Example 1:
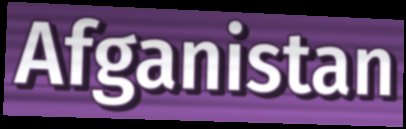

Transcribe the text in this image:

Afganistan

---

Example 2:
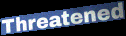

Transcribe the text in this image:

Threatened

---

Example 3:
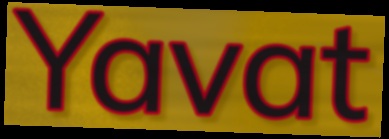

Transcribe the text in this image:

Yavat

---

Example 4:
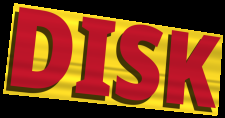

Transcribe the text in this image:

DISK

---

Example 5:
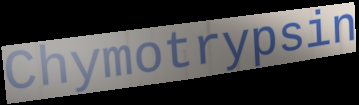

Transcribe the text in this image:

Chymotrypsin